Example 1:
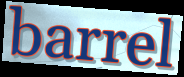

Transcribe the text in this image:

barrel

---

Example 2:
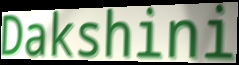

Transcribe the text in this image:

Dakshini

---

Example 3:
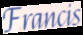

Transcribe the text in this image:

Francis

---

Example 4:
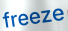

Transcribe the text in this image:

freeze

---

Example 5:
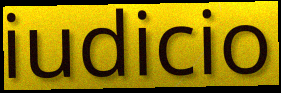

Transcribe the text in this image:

iudicio